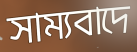
সাম্যবাদে